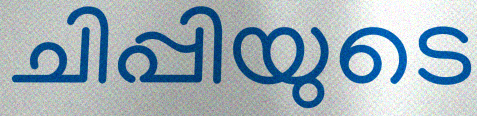
ചിപ്പിയുടെ